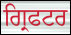
ਗ੍ਰਿਫਟਰ